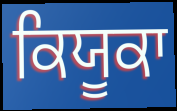
ਕਿਯੂਕਾ